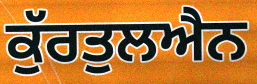
ਕੁੱਰਤੁਲਐਨ